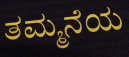
ತಮ್ಮನೆಯ